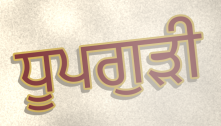
ਧੂਪਗੁੜੀ